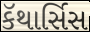
કૅથાર્સિસ